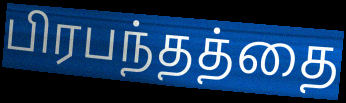
பிரபந்தத்தை